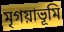
মৃগয়াভূমি